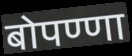
बोपण्णा